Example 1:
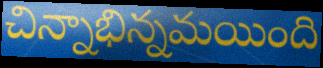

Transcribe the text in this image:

చిన్నాభిన్నమయింది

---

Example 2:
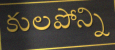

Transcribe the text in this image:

కులపోన్ని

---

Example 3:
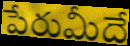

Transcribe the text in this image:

పేరుమీదే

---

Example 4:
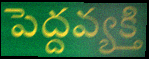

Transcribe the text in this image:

పెద్దవ్యక్తి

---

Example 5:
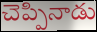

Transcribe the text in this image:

చెప్పినాడు